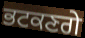
ਭਟਕਣਗੇ